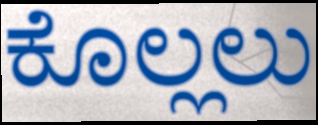
ಕೊಲ್ಲಲು